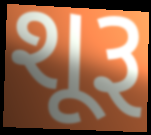
શૂરૂ